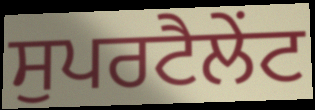
ਸੁਪਰਟੈਲੇਂਟ